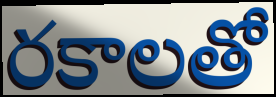
రకాలతో